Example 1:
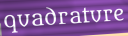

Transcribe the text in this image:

quadrature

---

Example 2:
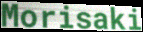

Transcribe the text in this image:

Morisaki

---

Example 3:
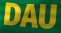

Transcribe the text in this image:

DAU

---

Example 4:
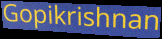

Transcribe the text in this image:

Gopikrishnan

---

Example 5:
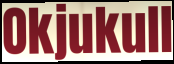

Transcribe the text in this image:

Okjukull